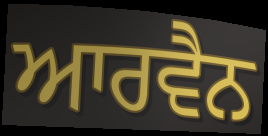
ਆਰਵੈਨ